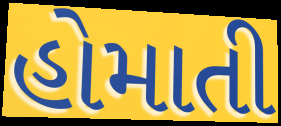
હોમાતી